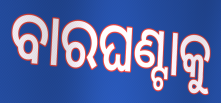
ବାରଘଣ୍ଟାକୁ